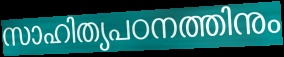
സാഹിത്യപഠനത്തിനും